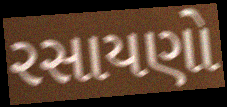
રસાયણો